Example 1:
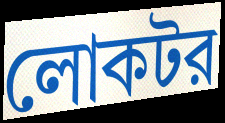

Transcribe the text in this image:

লোকটর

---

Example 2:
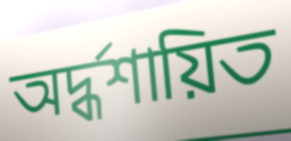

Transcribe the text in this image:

অর্দ্ধশায়িত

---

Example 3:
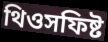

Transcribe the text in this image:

থিওসফিষ্ট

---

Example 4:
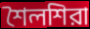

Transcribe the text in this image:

শৈলশিরা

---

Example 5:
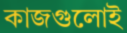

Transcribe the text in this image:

কাজগুলোই